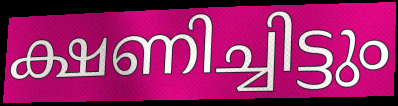
ക്ഷണിച്ചിട്ടും